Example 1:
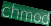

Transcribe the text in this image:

chmod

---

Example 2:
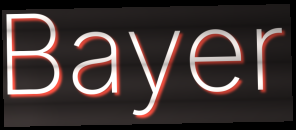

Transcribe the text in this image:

Bayer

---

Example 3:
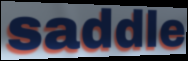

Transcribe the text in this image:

saddle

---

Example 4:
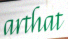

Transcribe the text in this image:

arthat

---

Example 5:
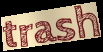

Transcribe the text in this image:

trash